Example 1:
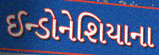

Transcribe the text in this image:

ઈન્ડોનેશિયાના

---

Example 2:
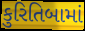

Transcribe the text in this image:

કુરિતિબામાં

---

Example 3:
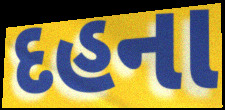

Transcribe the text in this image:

દહના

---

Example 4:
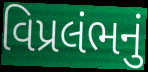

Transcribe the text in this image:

વિપ્રલંભનું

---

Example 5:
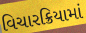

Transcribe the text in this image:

વિચારક્રિયામાં